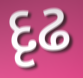
દૃઢ